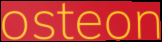
osteon